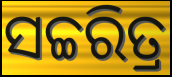
ସଚ୍ଚରିତ୍ର